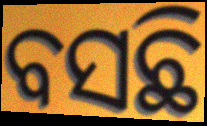
ବସଛି